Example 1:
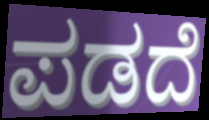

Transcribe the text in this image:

ಪಡದೆ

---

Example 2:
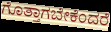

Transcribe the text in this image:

ಗೊತ್ತಾಗಬೇಕೆಂದರೆ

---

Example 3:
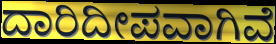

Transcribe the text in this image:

ದಾರಿದೀಪವಾಗಿವೆ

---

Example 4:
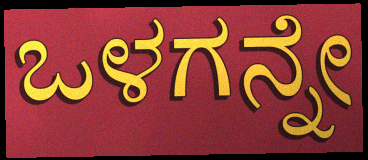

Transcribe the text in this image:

ಒಳಗನ್ನೇ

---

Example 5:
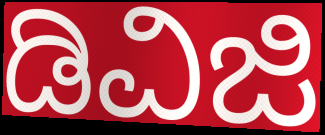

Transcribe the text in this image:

ಡಿವಿಜಿ